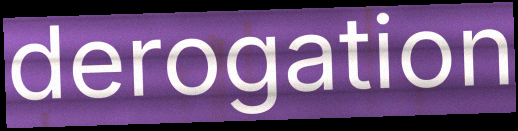
derogation